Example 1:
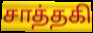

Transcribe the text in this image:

சாத்தகி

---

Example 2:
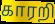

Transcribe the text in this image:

காரறி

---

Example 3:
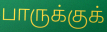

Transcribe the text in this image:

பாருக்குக்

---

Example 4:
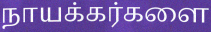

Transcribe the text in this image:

நாயக்கர்களை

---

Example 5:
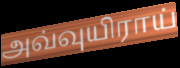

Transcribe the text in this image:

அவ்வுயிராய்